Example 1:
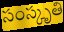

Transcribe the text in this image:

సంస్కృతి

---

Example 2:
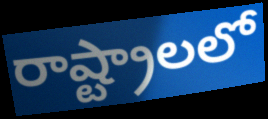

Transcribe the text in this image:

రాష్ట్రాలలో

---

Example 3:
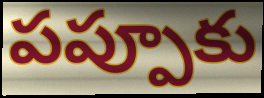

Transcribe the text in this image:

పప్పూకు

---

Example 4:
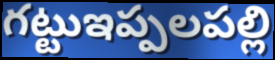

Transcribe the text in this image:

గట్టుఇప్పలపల్లి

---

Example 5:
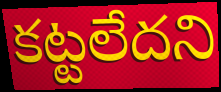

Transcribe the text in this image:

కట్టలేదని